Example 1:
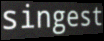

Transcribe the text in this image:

singest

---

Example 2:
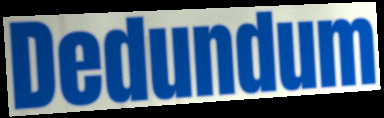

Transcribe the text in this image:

Dedundum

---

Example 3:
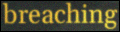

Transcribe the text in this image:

breaching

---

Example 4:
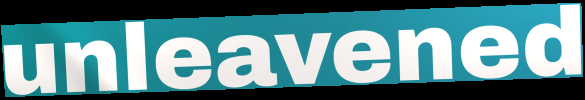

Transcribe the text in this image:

unleavened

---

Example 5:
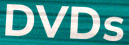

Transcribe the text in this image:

DVDs